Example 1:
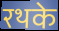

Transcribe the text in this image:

रथके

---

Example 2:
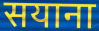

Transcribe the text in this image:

सयाना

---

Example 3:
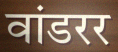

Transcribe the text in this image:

वांडरर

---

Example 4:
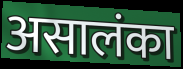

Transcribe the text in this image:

असालंका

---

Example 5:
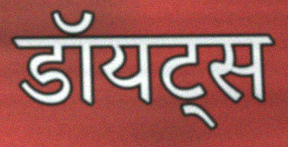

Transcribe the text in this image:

डॉयट्स